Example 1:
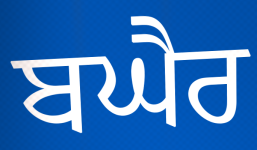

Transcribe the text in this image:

ਬਘੈਰ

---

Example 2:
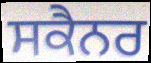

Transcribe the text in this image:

ਸਕੈਨਰ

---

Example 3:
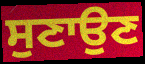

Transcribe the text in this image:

ਸੁਣਾਉਣ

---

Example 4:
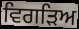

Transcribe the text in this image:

ਵਿਗੜਿਅ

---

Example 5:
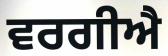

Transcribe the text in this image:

ਵਰਗੀਐ